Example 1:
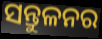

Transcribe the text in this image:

ସନ୍ତୁଳନର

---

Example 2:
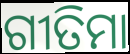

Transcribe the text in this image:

ଗୀତିମା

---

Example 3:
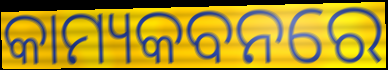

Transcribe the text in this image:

କାମ୍ୟକବନରେ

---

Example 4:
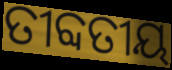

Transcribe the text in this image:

ତୀବ୍ଦତୀୟ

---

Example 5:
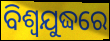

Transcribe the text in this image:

ବିଶ୍ଵଯୁଦ୍ଧରେ